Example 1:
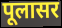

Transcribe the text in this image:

पूलासर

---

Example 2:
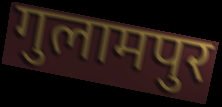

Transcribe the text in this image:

गुलामपुर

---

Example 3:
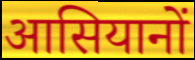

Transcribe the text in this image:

आसियानों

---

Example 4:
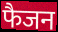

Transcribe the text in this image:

फैजन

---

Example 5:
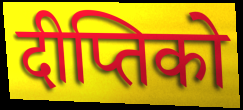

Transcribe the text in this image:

दीप्तिको